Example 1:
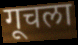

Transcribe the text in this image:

गूचला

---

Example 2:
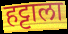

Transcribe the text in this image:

हट्टाला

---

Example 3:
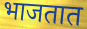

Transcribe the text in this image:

भाजतात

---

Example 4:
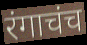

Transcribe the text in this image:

रंगाचंच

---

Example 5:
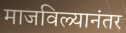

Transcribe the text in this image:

माजविल्यानंतर